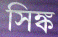
সিঙ্ক